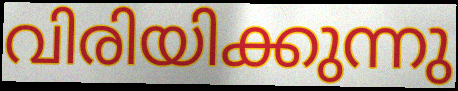
വിരിയിക്കുന്നു